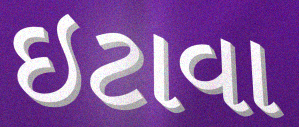
ઇટાવા